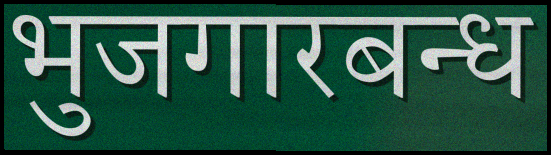
भुजगारबन्ध